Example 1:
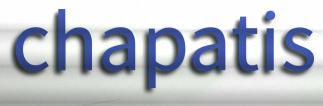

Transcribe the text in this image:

chapatis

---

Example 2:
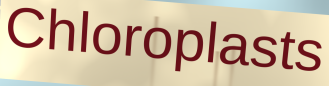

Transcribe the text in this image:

Chloroplasts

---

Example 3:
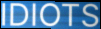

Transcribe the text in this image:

IDIOTS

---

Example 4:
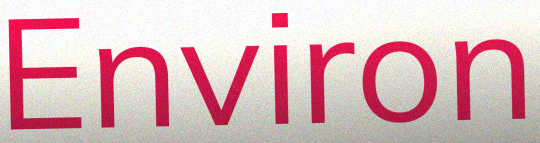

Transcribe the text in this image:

Environ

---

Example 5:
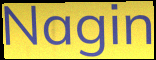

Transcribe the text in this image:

Nagin